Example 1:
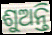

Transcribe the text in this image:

ଶୁଅନ୍ତି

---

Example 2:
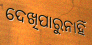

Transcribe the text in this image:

ଦେଖିପାରୁନାହିଁ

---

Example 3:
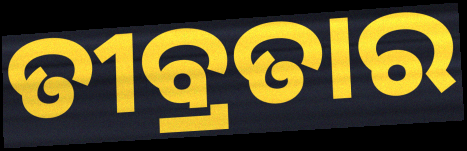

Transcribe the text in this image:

ତୀବ୍ରତାର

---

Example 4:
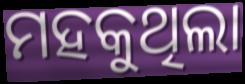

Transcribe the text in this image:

ମହକୁଥିଲା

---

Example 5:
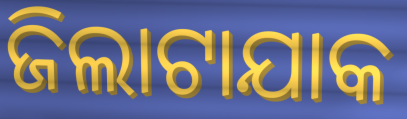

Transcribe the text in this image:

ଜିଲାଟାଯାକ